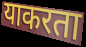
याकरता